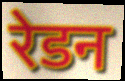
रेडन